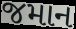
જમાન